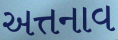
અત્તનાવ